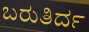
ಬರುತಿರ್ದ